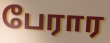
பேரார